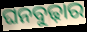
ଘନବୁଢ଼ାର